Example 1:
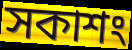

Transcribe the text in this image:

সকাশং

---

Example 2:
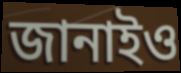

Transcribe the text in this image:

জানাইও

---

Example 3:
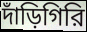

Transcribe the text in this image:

দাঁড়িগিরি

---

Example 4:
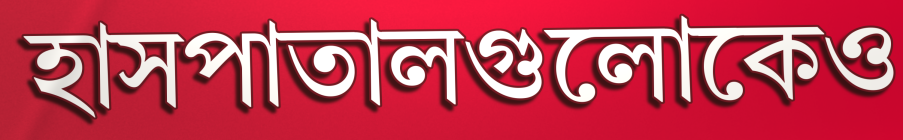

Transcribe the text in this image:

হাসপাতালগুলোকেও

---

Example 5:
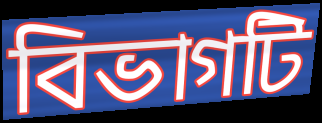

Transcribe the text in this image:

বিভাগটি